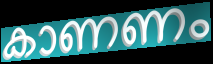
കാണണം